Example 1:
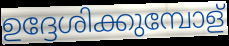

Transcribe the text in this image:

ഉദ്ദേശിക്കുമ്പോള്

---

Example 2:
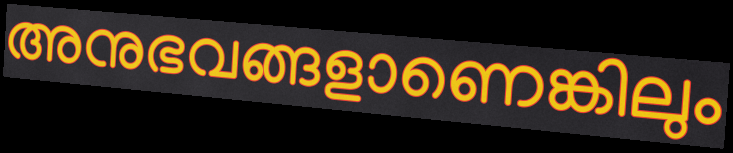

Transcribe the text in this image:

അനുഭവങ്ങളാണെങ്കിലും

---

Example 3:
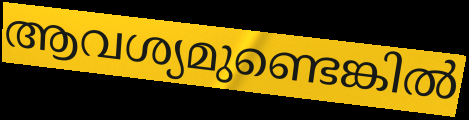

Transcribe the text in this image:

ആവശ്യമുണ്ടെങ്കിൽ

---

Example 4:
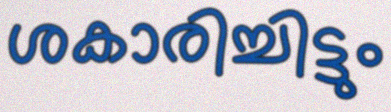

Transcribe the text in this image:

ശകാരിച്ചിട്ടും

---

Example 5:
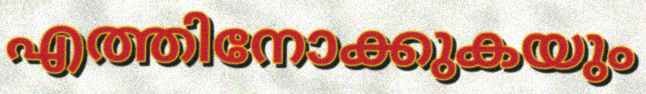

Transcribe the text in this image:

എത്തിനോക്കുകയും